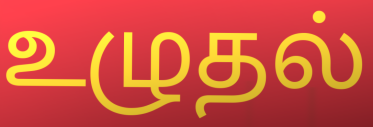
உழுதல்